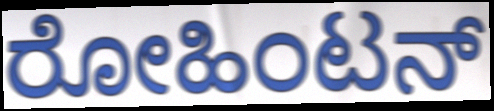
ರೋಹಿಂಟನ್